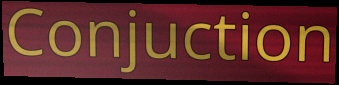
Conjuction